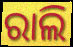
ରାଲି